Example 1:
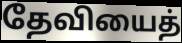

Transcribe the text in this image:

தேவியைத்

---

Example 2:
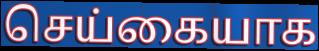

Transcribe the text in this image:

செய்கையாக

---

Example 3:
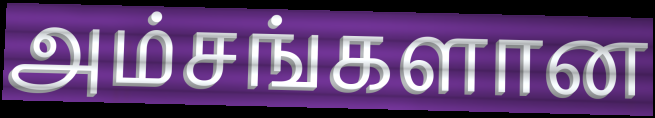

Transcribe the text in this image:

அம்சங்களான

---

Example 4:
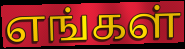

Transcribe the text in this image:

எங்கள்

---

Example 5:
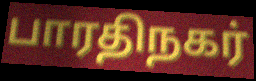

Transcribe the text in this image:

பாரதிநகர்